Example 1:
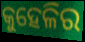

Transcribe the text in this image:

କୁହେଳିର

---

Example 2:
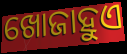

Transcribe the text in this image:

ଖୋଜାହୁଏ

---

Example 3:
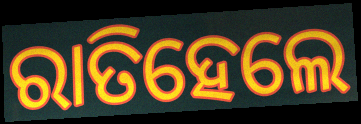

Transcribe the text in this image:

ରାତିହେଲେ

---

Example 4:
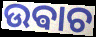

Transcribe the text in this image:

ଉଵାଚ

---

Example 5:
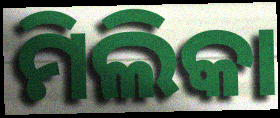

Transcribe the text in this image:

ମିଲିକା